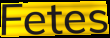
Fetes